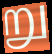
று